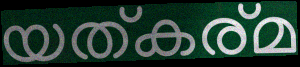
യത്കര്മ